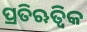
ପ୍ରତିଋତ୍ୱିକ